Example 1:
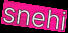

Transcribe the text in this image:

snehi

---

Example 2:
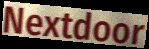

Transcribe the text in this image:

Nextdoor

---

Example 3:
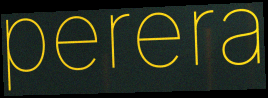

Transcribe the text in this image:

perera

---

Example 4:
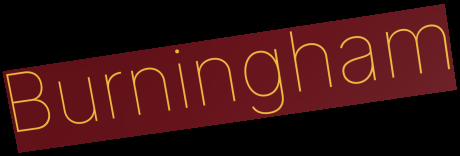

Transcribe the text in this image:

Burningham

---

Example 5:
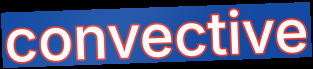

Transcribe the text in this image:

convective